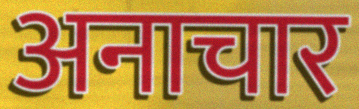
अनाचार